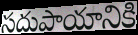
సదుపాయానికి